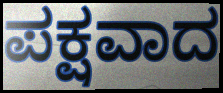
ಪಕ್ಷವಾದ